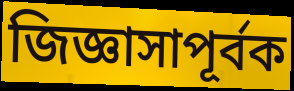
জিজ্ঞাসাপূর্বক